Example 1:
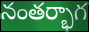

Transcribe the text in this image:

నంతర్భాగ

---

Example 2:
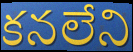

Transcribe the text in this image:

కనలేని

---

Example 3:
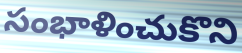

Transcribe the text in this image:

సంభాళించుకొని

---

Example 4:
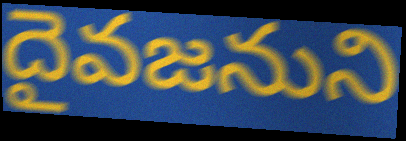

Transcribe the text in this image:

దైవజనుని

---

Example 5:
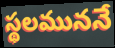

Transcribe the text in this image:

స్థలముననే